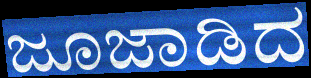
ಜೂಜಾಡಿದ